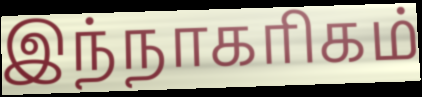
இந்நாகரிகம்